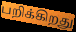
பறிக்கிறது